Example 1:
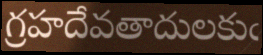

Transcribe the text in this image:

గ్రహదేవతాదులకుఁ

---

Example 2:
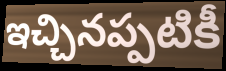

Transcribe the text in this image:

ఇచ్చినప్పటికీ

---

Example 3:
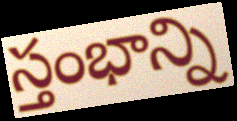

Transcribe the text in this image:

స్తంభాన్ని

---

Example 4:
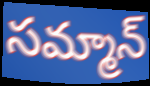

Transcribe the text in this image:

సమ్మాన్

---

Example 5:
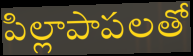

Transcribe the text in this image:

పిల్లాపాపలతో